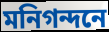
মনিগন্দনে